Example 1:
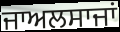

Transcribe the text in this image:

ਜਾਅਲਸਾਜਾਂ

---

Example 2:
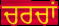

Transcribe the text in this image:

ਚਰਚਾਂ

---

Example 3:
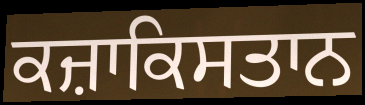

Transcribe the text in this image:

ਕਜ਼ਾਕਿਸਤਾਨ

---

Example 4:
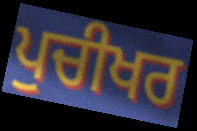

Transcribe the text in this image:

ਪੁਚੀਖਰ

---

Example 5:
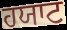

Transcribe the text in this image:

ਹਯਾਟ